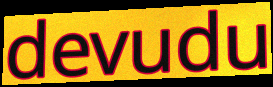
devudu